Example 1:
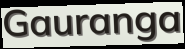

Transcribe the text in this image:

Gauranga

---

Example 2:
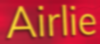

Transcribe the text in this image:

Airlie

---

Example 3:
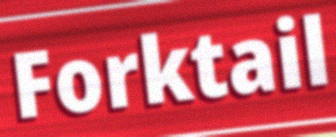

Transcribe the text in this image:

Forktail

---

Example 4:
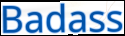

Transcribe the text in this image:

Badass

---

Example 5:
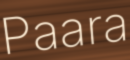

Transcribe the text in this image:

Paara